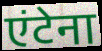
एंटेना